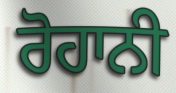
ਰੋਹਾਨੀ